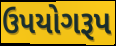
ઉપયોગરૂપ